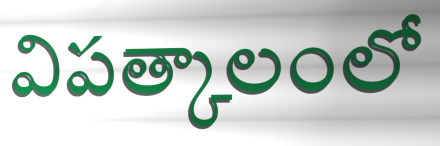
విపత్కాలంలో